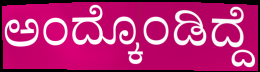
ಅಂದ್ಕೊಂಡಿದ್ದೆ